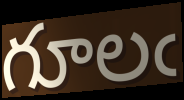
గూలఁ